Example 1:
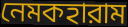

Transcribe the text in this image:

নেমকহারাম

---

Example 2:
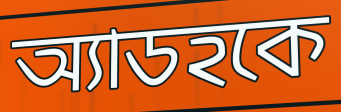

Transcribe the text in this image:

অ্যাডহকে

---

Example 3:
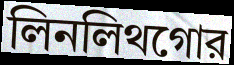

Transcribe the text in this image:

লিনলিথগোর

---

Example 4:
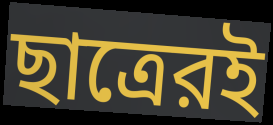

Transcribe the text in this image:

ছাত্রেরই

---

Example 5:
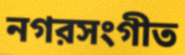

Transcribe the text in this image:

নগরসংগীত